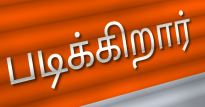
படிக்கிறார்